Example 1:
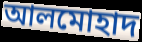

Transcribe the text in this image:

আলমোহাদ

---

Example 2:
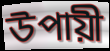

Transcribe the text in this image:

উপায়ী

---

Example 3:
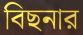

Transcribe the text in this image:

বিছনার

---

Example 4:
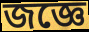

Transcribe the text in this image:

জজ্ঞে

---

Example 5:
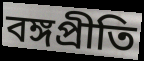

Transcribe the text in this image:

বঙ্গপ্রীতি